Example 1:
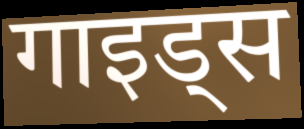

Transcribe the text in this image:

गाइड्स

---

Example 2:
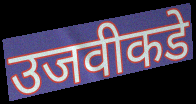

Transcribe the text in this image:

उजवीकडे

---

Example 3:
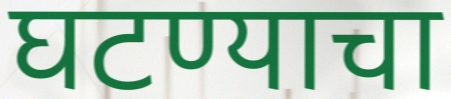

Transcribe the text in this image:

घटण्याचा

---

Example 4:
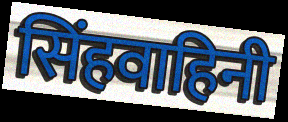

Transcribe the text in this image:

सिंहवाहिनी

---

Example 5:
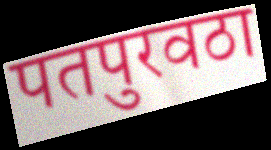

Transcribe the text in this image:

पतपुरवठा